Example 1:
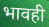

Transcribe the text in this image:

भावही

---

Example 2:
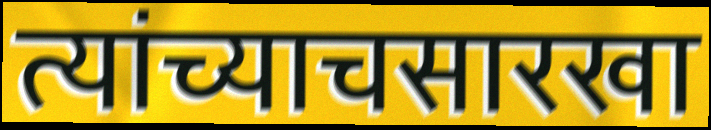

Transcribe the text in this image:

त्यांच्याचसारखा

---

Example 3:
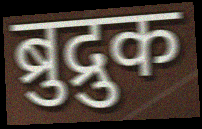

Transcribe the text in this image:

ब्रुद्रुक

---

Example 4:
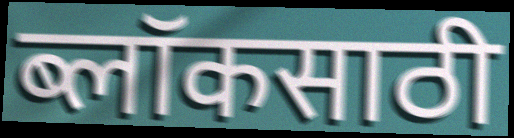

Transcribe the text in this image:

ब्लॉकसाठी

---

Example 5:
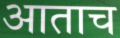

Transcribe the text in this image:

आताच